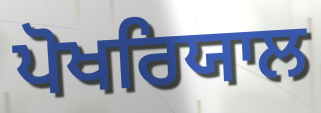
ਪੋਖਰਿਯਾਲ